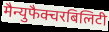
मैन्युफैक्चरबिलिटी